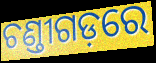
ଚଣ୍ଡୀଗଡ଼ରେ